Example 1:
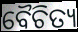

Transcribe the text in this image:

ବୈଚିତ୍ୟ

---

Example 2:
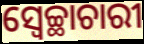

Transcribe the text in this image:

ସ୍ୱେଚ୍ଛାଚାରୀ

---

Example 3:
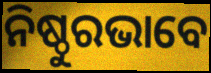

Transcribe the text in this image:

ନିଷ୍ଠୁରଭାବେ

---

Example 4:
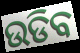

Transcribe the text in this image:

ଉଡିବ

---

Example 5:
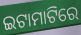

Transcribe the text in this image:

ଇଟାମାଟିରେ